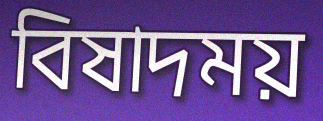
বিষাদময়